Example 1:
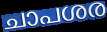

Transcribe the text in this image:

ചാപശര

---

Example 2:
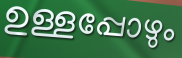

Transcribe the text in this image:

ഉള്ളപ്പോഴും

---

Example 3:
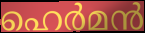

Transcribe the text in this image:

ഹെർമൻ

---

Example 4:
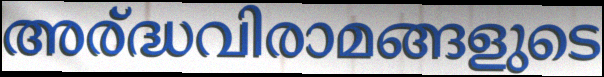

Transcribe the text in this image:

അര്ദ്ധവിരാമങ്ങളുടെ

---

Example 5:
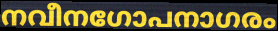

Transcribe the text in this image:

നവീനഗോപനാഗരം